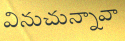
వినుచున్నావా